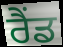
ਰੈਂਡ